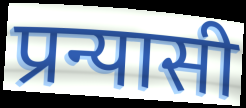
प्रन्यासी